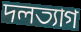
দলত্যাগ